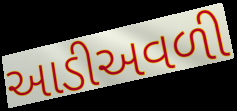
આડીઅવળી